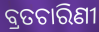
ବ୍ରତଚାରିଣୀ